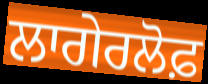
ਲਾਗੇਰਲੋਫ਼